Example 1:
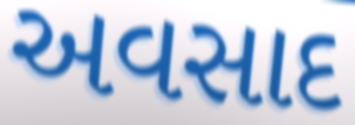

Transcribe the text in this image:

અવસાદ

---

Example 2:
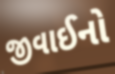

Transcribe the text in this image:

જીવાઈનો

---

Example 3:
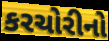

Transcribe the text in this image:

કરચોરીનો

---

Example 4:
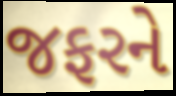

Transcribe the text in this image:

જફરને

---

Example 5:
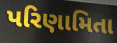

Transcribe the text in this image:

પરિણામિતા